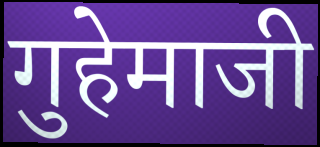
गुहेमाजी